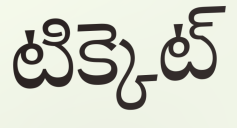
టిక్కెట్